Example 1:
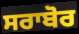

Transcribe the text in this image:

ਸਰਾਬੋਰ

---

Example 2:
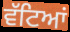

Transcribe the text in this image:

ਵੱਟਿਆਂ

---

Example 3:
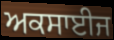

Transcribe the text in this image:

ਅਕਸਾਈਜ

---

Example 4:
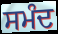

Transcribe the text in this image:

ਸਮੰਦ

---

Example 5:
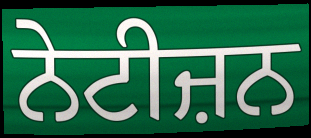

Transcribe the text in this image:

ਨੇਟੀਜ਼ਨ